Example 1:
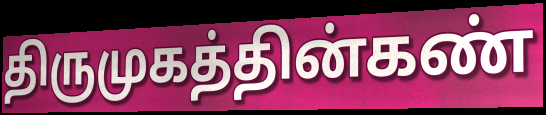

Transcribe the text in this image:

திருமுகத்தின்கண்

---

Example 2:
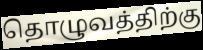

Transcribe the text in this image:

தொழுவத்திற்கு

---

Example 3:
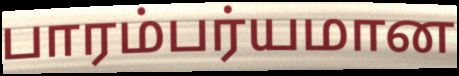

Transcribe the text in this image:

பாரம்பர்யமான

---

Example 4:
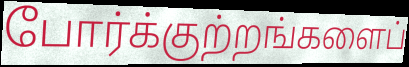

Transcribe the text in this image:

போர்க்குற்றங்களைப்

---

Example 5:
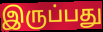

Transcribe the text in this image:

இருப்பது